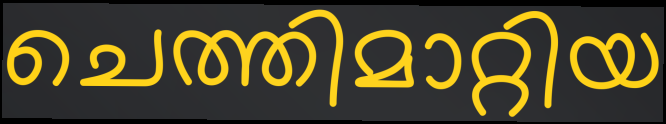
ചെത്തിമാറ്റിയ